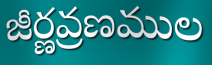
జీర్ణవ్రణముల